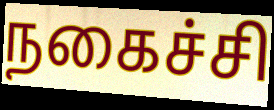
நகைச்சி